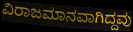
ವಿರಾಜಮಾನವಾಗಿದ್ದವು